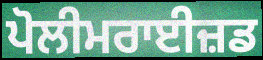
ਪੋਲੀਮਰਾਈਜ਼ਡ